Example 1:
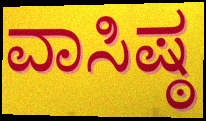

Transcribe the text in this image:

ವಾಸಿಷ್ಠ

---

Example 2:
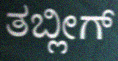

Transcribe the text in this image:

ತಬ್ಲೀಗ್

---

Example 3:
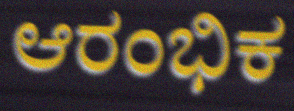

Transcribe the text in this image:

ಆರಂಭಿಕ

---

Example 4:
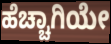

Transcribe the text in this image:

ಹೆಚ್ಚಾಗಿಯೇ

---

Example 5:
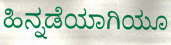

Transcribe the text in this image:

ಹಿನ್ನಡೆಯಾಗಿಯೂ